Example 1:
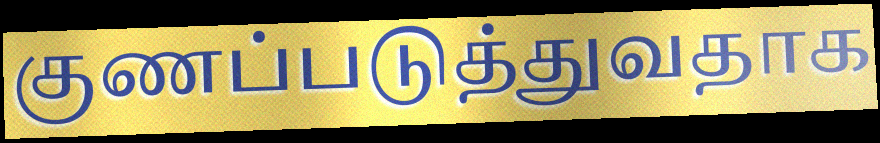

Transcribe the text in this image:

குணப்படுத்துவதாக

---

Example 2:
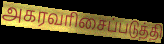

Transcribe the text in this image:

அகரவரிசைப்படுத்தி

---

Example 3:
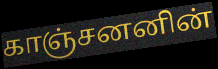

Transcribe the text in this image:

காஞ்சனனின்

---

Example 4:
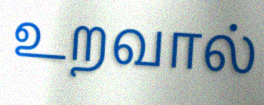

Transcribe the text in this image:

உறவால்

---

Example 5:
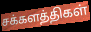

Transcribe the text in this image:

சக்களத்திகள்